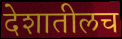
देशातीलच